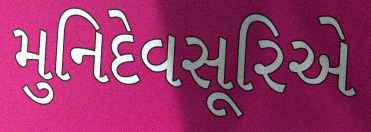
મુનિદેવસૂરિએ